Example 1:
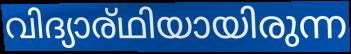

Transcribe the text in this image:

വിദ്യാര്ഥിയായിരുന്ന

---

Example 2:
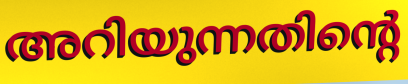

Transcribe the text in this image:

അറിയുന്നതിന്റെ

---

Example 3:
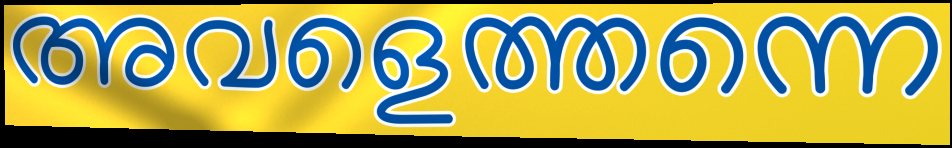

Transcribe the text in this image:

അവളെത്തന്നെ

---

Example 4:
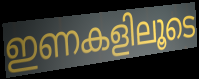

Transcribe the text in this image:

ഇണകളിലൂടെ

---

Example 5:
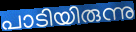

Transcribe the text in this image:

പാടിയിരുന്നു